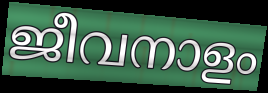
ജീവനാളം